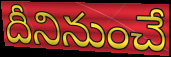
దీనినుంచే